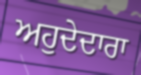
ਅਹੁਦੇਦਾਰਾ